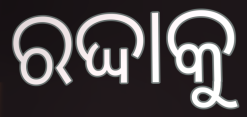
ରଦ୍ଦାକୁ